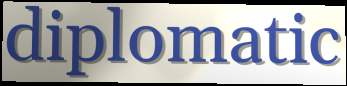
diplomatic